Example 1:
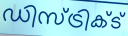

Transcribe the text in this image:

ഡിസ്ട്രിക്ട്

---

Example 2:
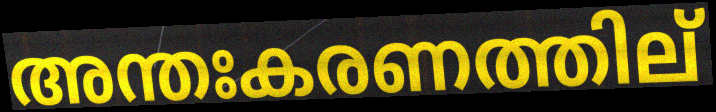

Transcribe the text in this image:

അന്തഃകരണത്തില്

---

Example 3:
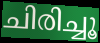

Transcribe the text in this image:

ചിരിച്ചൂ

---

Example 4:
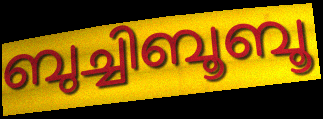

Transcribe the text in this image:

ബുച്ചിബൂബൂ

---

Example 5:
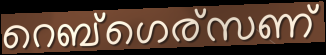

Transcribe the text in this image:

റെബ്ഗെര്സണ്